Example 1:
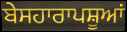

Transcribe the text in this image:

ਬੇਸਹਾਰਾਪਸ਼ੂਆਂ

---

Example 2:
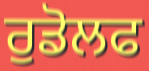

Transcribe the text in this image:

ਰੁਡੋਲਫ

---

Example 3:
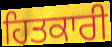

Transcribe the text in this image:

ਹਿਤਕਾਰੀ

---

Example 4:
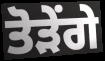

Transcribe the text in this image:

ਤੋੜੇਂਗੇ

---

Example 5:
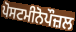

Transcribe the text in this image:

ਪੋਸਟਮੀਨੋਪੌਜ਼ਲ